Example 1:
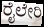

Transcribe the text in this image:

ರೈಲೇರಿ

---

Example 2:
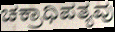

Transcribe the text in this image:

ಚಕ್ರಾಧಿಪತ್ಯವು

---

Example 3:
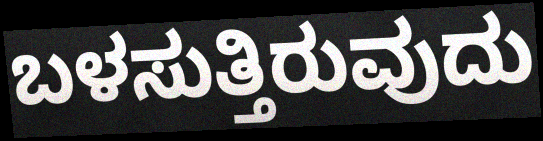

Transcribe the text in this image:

ಬಳಸುತ್ತಿರುವುದು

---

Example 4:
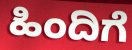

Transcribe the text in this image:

ಹಿಂದಿಗೆ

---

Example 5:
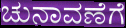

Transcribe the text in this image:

ಚುನಾವಣೆಗೆ